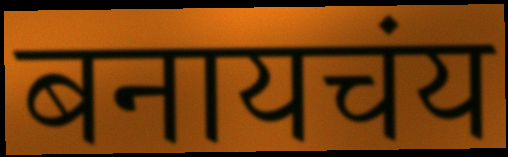
बनायचंय